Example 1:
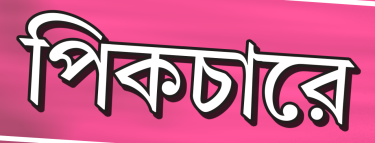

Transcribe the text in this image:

পিকচারে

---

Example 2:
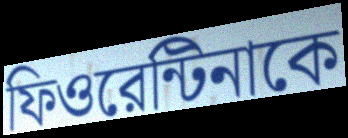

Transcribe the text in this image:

ফিওরেন্টিনাকে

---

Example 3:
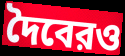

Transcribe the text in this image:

দৈবেরও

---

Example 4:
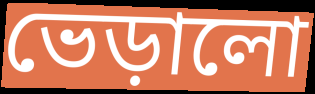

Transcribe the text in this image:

ভেড়ালো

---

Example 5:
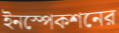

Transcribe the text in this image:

ইনস্পেকশনের